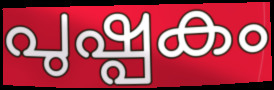
പുഷ്പകം